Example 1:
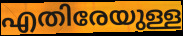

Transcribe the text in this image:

എതിരേയുള്ള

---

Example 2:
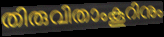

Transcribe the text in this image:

തിരുവിതാംകൂറിനും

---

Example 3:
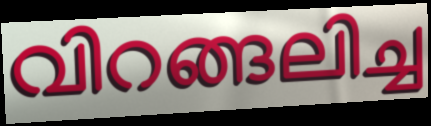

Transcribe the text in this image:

വിറങ്ങലിച്ച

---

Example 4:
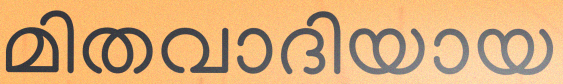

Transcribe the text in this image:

മിതവാദിയായ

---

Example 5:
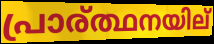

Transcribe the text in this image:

പ്രാര്ത്ഥനയില്